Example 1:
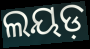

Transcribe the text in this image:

ଲୟଡ଼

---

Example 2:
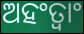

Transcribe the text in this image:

ଅହଂତ୍ୱାଂ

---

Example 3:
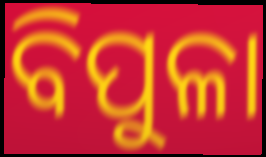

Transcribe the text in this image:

ବିପୁଳା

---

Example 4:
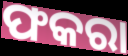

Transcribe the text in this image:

ଫକରା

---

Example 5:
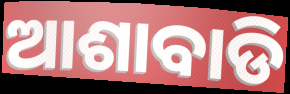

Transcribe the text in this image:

ଆଶାବାଡି